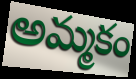
అమ్మకం